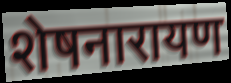
शेषनारायण